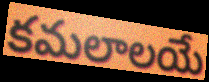
కమలాలయే